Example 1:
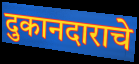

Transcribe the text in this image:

दुकानदाराचे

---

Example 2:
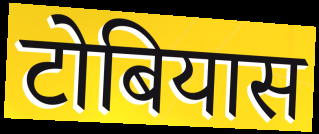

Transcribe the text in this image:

टोबियास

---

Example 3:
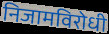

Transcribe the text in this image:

निजामविरोधी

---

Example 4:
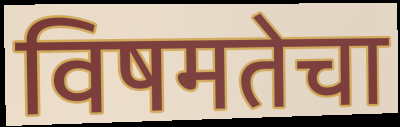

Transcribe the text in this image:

विषमतेचा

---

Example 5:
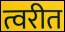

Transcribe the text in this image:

त्वरीत